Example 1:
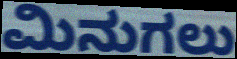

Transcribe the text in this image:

ಮಿನುಗಲು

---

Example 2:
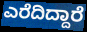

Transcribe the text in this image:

ಎರೆದಿದ್ದಾರೆ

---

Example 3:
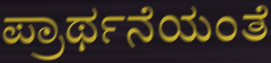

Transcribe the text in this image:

ಪ್ರಾರ್ಥನೆಯಂತೆ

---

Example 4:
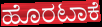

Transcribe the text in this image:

ಹೊರಟಾಕೆ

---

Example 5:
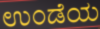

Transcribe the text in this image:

ಉಂಡೆಯ